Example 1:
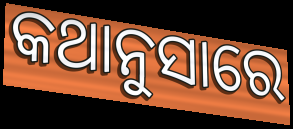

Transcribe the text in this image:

କଥାନୁସାରେ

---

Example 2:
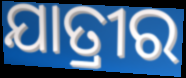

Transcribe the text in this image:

ଯାତ୍ରୀର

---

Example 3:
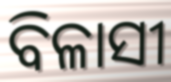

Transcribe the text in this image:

ବିଳାସୀ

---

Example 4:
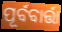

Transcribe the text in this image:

ପୂର୍ବବାର୍ତ୍ତା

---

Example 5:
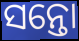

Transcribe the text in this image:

ସନ୍ତୋ